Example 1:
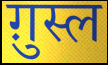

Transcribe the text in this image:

ग़ुस्ल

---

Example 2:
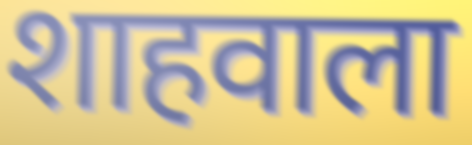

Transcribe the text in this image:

शाहवाला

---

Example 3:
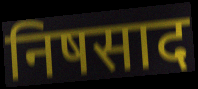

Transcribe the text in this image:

निषसाद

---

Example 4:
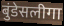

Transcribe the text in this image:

बुंडेसलीगा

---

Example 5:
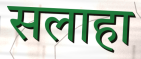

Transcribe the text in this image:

सलाहा